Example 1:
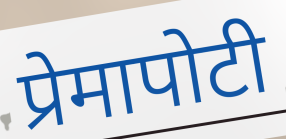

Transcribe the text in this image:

प्रेमापोटी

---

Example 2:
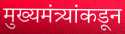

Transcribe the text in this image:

मुख्यमंत्र्यांकडून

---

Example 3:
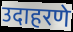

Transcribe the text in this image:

उदाहरणे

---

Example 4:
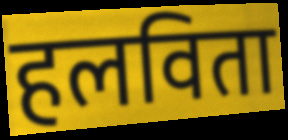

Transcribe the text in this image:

हलविता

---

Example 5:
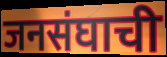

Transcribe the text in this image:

जनसंघाची